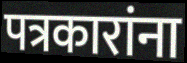
पत्रकारांना